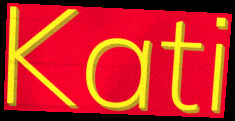
Kati